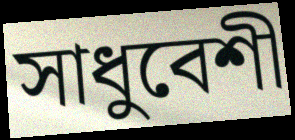
সাধুবেশী